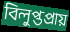
বিলুপ্তপ্ৰায়